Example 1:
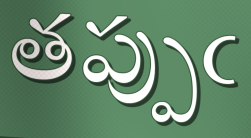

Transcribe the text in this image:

తప్పుఁ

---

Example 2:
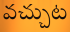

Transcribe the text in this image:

వచ్చుట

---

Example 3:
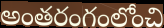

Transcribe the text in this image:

అంతరంగంలోంచి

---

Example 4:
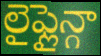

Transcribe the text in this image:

లైఫ్లైన్గా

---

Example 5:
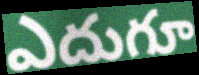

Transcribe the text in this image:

ఎదుగూ